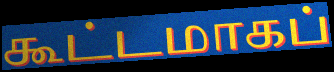
கூட்டமாகப்